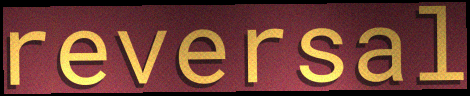
reversal